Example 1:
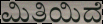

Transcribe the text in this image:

ಮಿತಿಯಿದೆ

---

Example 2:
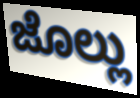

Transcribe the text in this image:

ಜೊಲ್ಲು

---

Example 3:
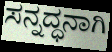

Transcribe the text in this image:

ಸನ್ನದ್ಧನಾಗಿ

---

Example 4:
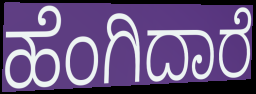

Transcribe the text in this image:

ಹೆಂಗಿದಾರೆ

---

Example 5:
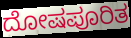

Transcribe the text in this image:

ದೋಷಪೂರಿತ